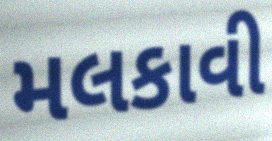
મલકાવી